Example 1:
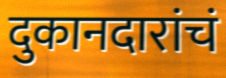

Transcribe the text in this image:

दुकानदारांचं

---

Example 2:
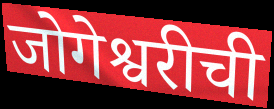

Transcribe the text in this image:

जोगेश्वरीची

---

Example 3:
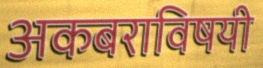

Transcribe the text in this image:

अकबराविषयी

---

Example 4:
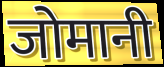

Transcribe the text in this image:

जोमानी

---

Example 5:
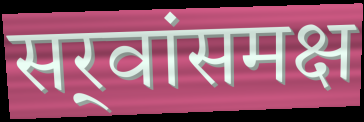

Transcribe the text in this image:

सर्वांसमक्ष